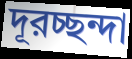
দূরচ্ছন্দা